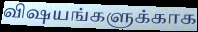
விஷயங்களுக்காக